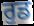
ਰੁਡ